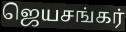
ஜெயசங்கர்